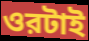
ওরটাই